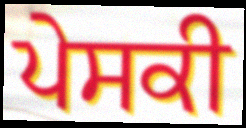
ਪੇਸਕੀ